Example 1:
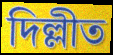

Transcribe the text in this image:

দিল্লীত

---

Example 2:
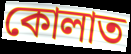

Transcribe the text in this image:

কোলাত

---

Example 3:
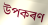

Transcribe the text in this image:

উপকৰণ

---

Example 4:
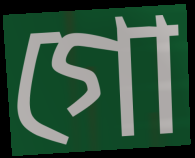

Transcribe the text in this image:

গো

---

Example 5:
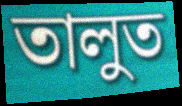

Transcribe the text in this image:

তালুত